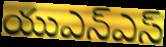
యుఎన్ఎస్